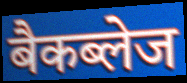
बैकब्लेज